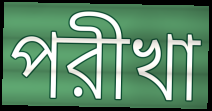
পরীখা